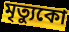
মৃত্যুকো